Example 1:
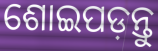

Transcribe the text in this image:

ଶୋଇପଡ଼ନ୍ତୁ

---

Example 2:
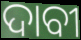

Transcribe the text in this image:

ଦାବୀ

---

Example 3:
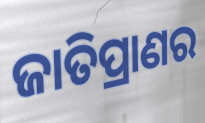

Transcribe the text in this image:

ଜାତିପ୍ରାଣର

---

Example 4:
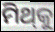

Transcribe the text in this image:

ମିଥ୍‍କୁ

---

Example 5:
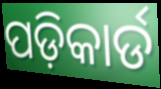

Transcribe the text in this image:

ପଡ଼ିକାର୍ଡ